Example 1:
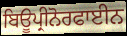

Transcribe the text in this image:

ਬਿਊਪ੍ਰੀਨੋਰਫਾਈਨ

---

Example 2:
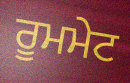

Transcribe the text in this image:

ਰੂਮਮੇਟ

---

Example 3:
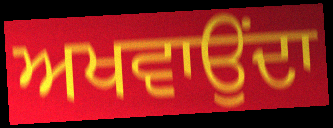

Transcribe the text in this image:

ਅਖਵਾਉਂਦਾ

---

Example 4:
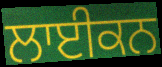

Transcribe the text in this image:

ਲਾਈਕਨ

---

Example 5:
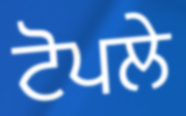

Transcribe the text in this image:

ਟੋਪਲੇ